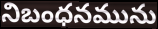
నిబంధనమును